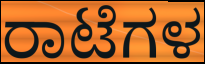
ರಾಟೆಗಳ